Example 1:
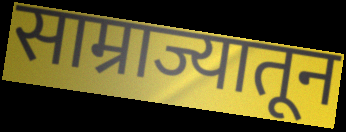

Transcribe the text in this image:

साम्राज्यातून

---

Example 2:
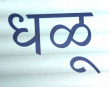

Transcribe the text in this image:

धळू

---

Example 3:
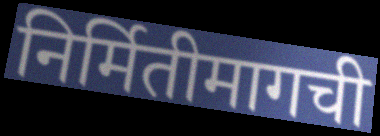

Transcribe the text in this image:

निर्मितीमागची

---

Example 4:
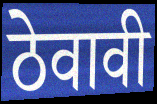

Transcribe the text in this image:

ठेवावी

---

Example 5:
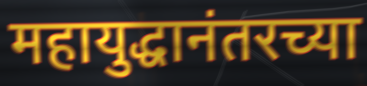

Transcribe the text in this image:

महायुद्धानंतरच्या